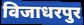
विजाधरपुर